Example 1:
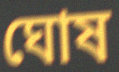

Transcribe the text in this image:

ঘোষ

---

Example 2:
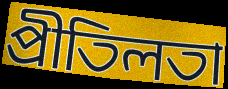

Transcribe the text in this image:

প্ৰীতিলতা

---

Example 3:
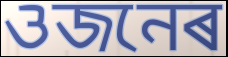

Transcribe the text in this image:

ওজনেৰ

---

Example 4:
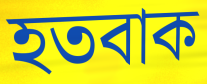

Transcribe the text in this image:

হতবাক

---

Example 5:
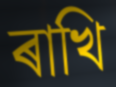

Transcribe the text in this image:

ৰাখি